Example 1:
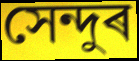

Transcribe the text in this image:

সেন্দুৰ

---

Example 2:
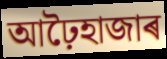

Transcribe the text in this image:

আঢ়ৈহাজাৰ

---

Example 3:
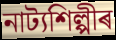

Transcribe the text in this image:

নাট্যশিল্পীৰ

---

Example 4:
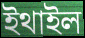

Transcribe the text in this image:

ইথাইল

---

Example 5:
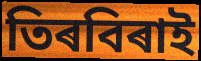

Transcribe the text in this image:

তিৰবিৰাই